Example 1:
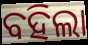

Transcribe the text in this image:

ବହିଲା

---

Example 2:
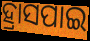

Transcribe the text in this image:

ହ୍ରାସପାଇ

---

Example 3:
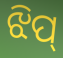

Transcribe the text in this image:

ଝିପ୍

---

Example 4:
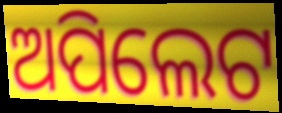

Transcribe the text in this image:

ଅପିଲେଟ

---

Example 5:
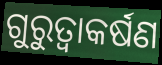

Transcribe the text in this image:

ଗୁରୁତ୍ଵାକର୍ଷଣ